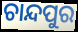
ଚାନ୍ଦପୁର